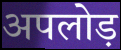
अपलोड़